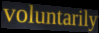
voluntarily